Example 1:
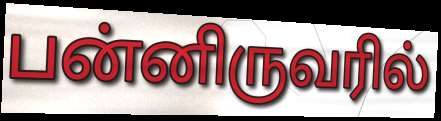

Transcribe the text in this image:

பன்னிருவரில்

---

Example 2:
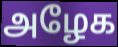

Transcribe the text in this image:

அழேக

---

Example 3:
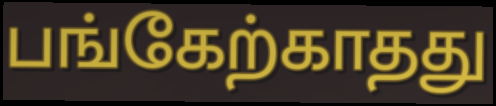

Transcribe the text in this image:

பங்கேற்காதது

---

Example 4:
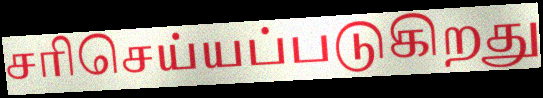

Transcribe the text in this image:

சரிசெய்யப்படுகிறது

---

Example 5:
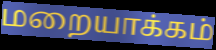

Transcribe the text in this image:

மறையாக்கம்